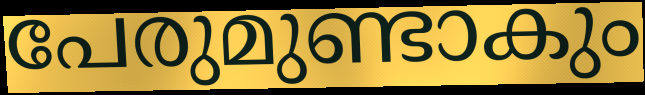
പേരുമുണ്ടാകും